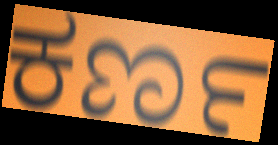
ಕರ್ಣ